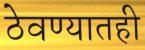
ठेवण्यातही